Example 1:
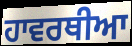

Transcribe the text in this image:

ਹਾਵਰਥੀਆ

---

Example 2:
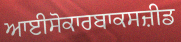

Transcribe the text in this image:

ਆਈਸੋਕਾਰਬਾਕਸਜ਼ੀਡ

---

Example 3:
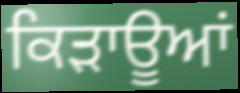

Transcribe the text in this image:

ਕਿੜਾਊਆਂ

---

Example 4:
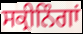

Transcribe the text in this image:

ਸਕ੍ਰੀਨਿੰਗਾਂ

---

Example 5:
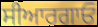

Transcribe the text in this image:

ਸੀਆਰਗਾਓ